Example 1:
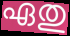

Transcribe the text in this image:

ഏതു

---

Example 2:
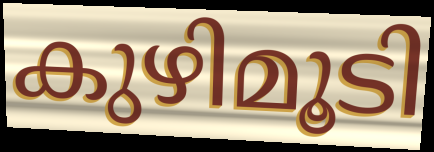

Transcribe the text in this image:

കുഴിമൂടി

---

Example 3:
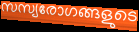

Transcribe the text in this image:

സസ്യരോഗങ്ങളുടെ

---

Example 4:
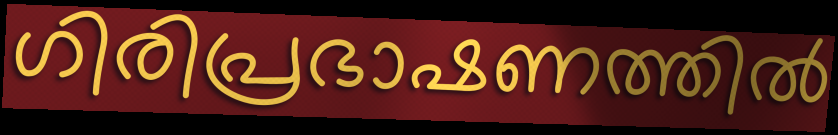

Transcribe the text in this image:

ഗിരിപ്രഭാഷണത്തിൽ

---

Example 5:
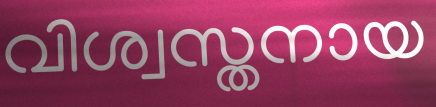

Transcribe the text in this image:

വിശ്വസ്തനായ